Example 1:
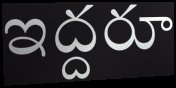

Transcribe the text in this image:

ఇద్దరూ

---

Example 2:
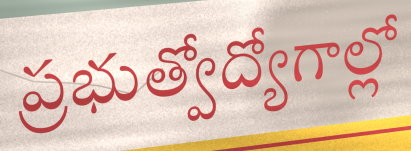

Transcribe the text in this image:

ప్రభుత్వోద్యోగాల్లో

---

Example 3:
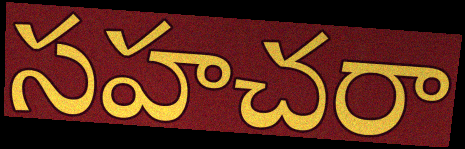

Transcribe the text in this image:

సహచరా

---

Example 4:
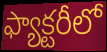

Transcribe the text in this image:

ఫ్యాక్టరీలో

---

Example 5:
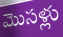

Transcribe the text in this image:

మొసళ్లు